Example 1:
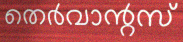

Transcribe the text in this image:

തെർവാന്റസ്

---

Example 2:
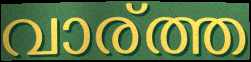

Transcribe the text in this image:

വാര്ത്ത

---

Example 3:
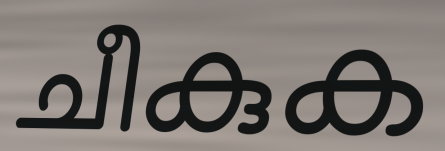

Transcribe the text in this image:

ചീകുക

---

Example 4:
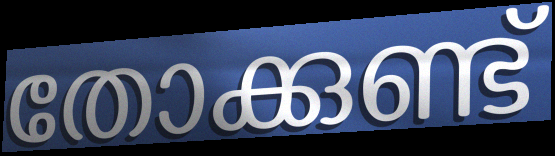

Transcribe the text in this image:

തോക്കുണ്ട്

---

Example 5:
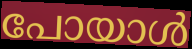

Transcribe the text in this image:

പോയാൾ